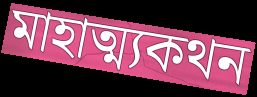
মাহাত্ম্যকথন